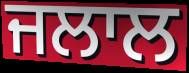
ਜਲਾਲ